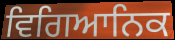
ਵਿਗਿਆਨਿਕ